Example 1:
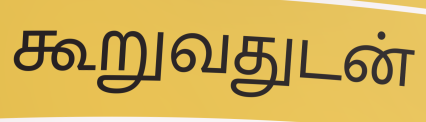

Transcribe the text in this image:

கூறுவதுடன்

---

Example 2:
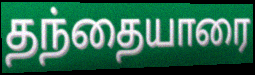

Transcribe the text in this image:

தந்தையாரை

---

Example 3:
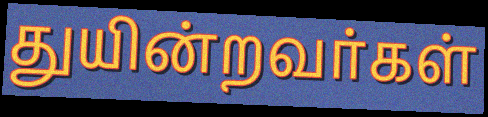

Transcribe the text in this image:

துயின்றவர்கள்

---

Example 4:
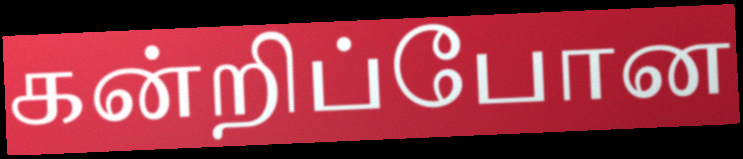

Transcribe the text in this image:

கன்றிப்போன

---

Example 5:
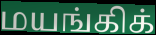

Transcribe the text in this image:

மயங்கிக்